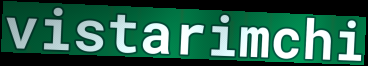
vistarimchi